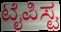
ಟೈಪಿಸ್ಟ